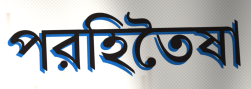
পরহিতৈষা